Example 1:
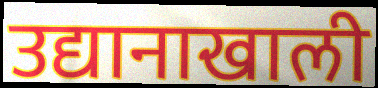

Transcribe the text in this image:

उद्यानाखाली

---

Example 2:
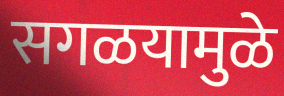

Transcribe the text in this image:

सगळयामुळे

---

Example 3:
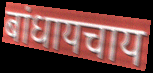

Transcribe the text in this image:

बांधायचाय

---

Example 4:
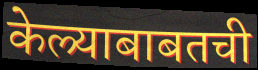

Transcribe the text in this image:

केल्याबाबतची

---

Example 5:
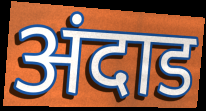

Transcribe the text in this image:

अंदाड